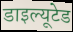
डाइल्यूटेड